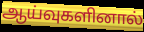
ஆய்வுகளினால்